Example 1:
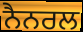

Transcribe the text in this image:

ਨੈਨਰਲ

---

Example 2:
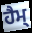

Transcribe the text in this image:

ਹੈਮ੍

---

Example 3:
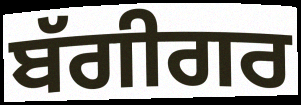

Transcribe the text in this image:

ਬੱਗੀਗਰ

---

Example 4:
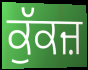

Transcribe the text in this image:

ਕੁੱਕਜ਼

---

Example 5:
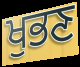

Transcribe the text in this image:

ਖੁਭਣ